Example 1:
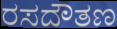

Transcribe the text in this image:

ರಸದೌತಣ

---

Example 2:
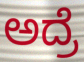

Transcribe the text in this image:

ಅದ್ರೆ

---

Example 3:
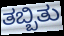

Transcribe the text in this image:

ತಬ್ಬಿತು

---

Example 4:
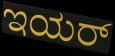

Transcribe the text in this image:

ಇಯರ್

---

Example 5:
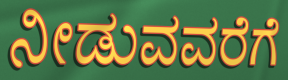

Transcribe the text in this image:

ನೀಡುವವರೆಗೆ